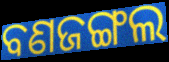
ବଣଜଙ୍ଗଲ